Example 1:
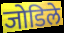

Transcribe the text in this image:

जोडिले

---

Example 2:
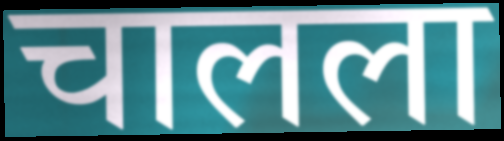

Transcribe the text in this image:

चालला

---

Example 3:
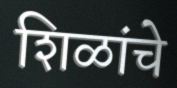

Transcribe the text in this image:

शिळांचे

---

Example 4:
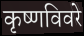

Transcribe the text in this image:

कृष्णविवरे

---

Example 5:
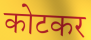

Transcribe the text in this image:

कोटकर